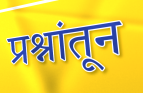
प्रश्नांतून